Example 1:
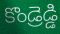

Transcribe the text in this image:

కొండ్రెడ్డి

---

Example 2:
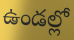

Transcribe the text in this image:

ఉండల్లో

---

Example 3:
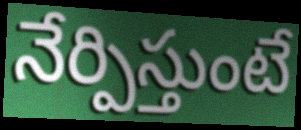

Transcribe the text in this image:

నేర్పిస్తుంటే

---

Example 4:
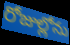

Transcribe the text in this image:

రోజుల్లోను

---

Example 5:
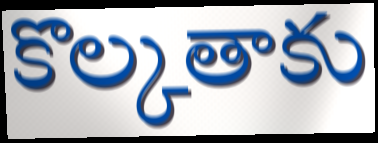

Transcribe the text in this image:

కొల్కతాకు